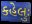
કહેલુઃ